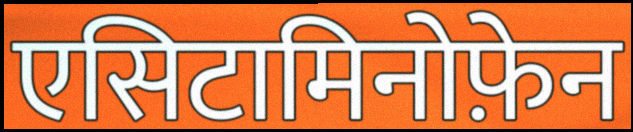
एसिटामिनोफ़ेन